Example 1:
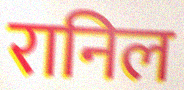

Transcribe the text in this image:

रानिल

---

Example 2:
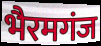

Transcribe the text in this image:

भैरमगंज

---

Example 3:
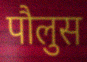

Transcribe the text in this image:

पौलुस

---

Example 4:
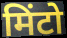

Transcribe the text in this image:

मिंटो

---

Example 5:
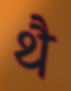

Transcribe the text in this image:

थै